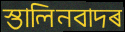
স্তালিনবাদৰ